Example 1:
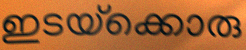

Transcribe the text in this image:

ഇടയ്‌ക്കൊരു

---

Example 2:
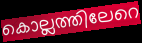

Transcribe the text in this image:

കൊല്ലത്തിലേറെ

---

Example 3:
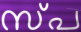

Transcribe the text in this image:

സ്പ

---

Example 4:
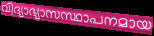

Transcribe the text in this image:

വിദ്യാഭ്യാസസ്ഥാപനമായ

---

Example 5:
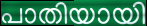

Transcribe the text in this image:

പാതിയായി